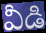
వీడి